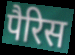
पैरिस